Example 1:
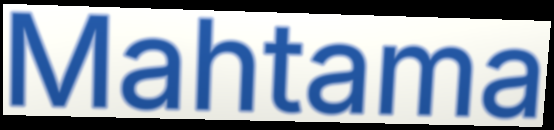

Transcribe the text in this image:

Mahtama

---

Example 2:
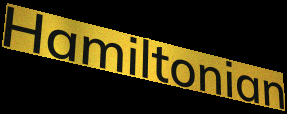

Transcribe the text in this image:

Hamiltonian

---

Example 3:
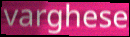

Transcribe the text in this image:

varghese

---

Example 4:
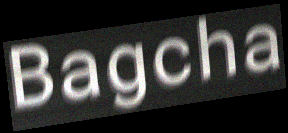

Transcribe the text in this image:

Bagcha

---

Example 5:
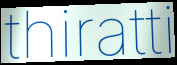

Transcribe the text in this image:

thiratti